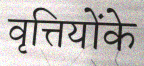
वृत्तियोंके